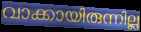
വാക്കായിരുന്നില്ല